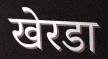
खेरडा